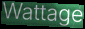
Wattage